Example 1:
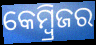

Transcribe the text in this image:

କେମ୍ବ୍ରିଜର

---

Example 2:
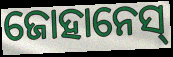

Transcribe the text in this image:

ଜୋହାନେସ୍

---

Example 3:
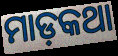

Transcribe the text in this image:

ମାଡ଼କଥା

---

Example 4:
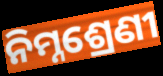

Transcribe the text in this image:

ନିମ୍ନଶ୍ରେଣୀ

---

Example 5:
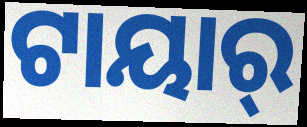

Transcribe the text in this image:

ଟାୟାର୍